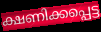
ക്ഷണിക്കപ്പെട്ട